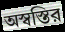
অস্বস্তির